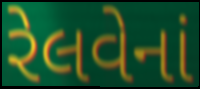
રેલવેનાં